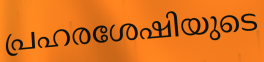
പ്രഹരശേഷിയുടെ